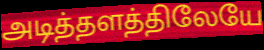
அடித்தளத்திலேயே